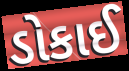
ડોકાઈ